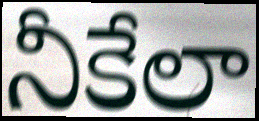
నీకేలా